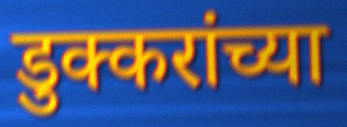
डुक्करांच्या